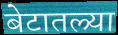
बेटातल्या